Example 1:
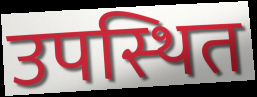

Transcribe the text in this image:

उपस्थित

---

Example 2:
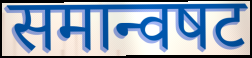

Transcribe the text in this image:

समान्वषट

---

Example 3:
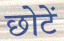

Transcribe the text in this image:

छोटें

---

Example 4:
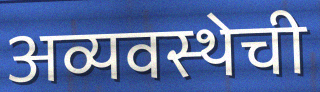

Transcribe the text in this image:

अव्यवस्थेची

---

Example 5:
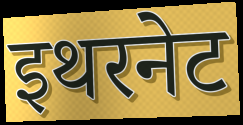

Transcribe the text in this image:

इथरनेट